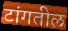
टांगतील